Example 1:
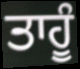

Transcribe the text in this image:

ਤਾਹੂੰ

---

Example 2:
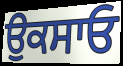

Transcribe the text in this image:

ਉਕਸਾਓ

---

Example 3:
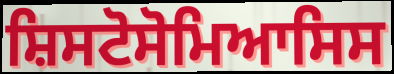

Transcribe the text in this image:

ਸ਼ਿਸਟੋਸੋਮਿਆਸਿਸ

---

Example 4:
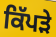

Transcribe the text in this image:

ਕਿੱਪੜੇ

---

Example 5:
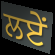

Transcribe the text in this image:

ਲਏਂ